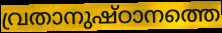
വ്രതാനുഷ്ഠാനത്തെ